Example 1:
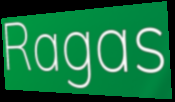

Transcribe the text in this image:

Ragas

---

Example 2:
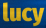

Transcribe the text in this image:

lucy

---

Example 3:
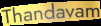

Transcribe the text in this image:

Thandavam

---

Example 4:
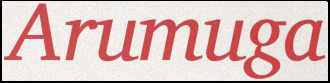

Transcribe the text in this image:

Arumuga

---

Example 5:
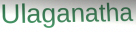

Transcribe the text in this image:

Ulaganatha